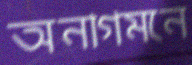
অনাগমনে